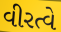
વીરત્વે